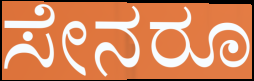
ಸೇನರೂ